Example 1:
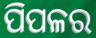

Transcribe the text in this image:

ପିପଳର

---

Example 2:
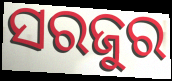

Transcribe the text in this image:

ସରଜୁର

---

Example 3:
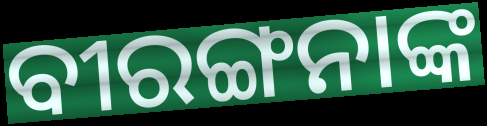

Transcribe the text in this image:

ବୀରଙ୍ଗନାଙ୍କ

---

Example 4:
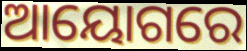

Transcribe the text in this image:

ଆୟୋଗରେ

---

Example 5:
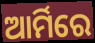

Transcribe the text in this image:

ଆର୍ମିରେ